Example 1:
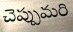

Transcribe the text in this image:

చెప్పుమరి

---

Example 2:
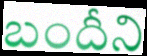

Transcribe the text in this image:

బందీని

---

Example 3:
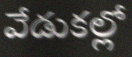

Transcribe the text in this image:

వేడుకల్లో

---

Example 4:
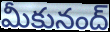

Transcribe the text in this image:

మీకునంద్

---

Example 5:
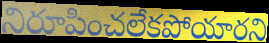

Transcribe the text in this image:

నిరూపించలేకపోయారని